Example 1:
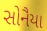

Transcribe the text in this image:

સોનૈયા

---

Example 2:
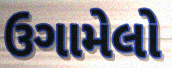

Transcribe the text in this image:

ઉગામેલો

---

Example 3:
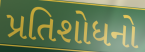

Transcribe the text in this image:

પ્રતિશોધનો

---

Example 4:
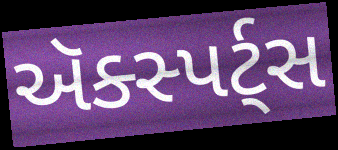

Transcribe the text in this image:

ઍક્સ્પર્ટ્સ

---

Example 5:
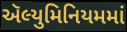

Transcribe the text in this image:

ઍલ્યુમિનિયમમાં